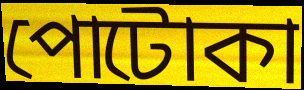
পোটোকা